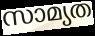
സാമ്യത